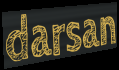
darsan